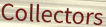
Collectors